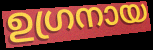
ഉഗ്രനായ